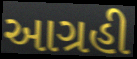
આગ્રહી